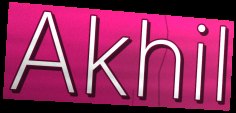
Akhil